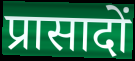
प्रासादों